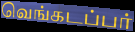
வெங்கடப்பர்